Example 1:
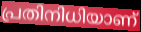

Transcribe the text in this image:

പ്രതിനിധിയാണ്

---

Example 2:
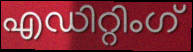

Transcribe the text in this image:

എഡിറ്റിംഗ്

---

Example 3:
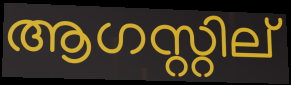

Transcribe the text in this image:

ആഗസ്റ്റില്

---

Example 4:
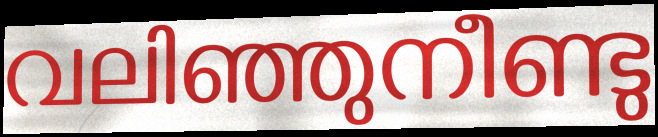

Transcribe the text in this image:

വലിഞ്ഞുനീണ്ടു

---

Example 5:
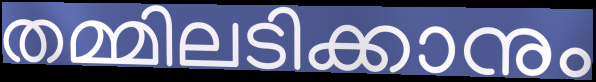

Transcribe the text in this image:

തമ്മിലടിക്കാനും